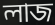
লাজ